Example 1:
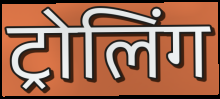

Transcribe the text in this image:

ट्रोलिंग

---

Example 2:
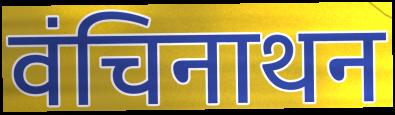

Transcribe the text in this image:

वंचिनाथन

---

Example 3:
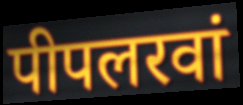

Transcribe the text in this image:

पीपलरवां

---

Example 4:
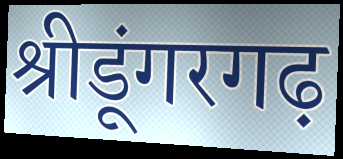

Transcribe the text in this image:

श्रीडूंगरगढ़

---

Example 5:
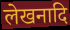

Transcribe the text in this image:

लेखनादि